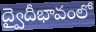
ద్వైదీభావంలో